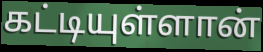
கட்டியுள்ளான்